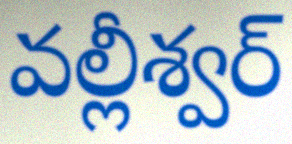
వల్లీశ్వర్